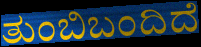
ತುಂಬಿಬಂದಿದೆ